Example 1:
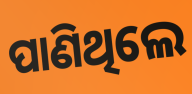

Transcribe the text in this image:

ପାଣିଥିଲେ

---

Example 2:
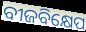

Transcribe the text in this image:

ବୀଜବିକ୍ଷେପ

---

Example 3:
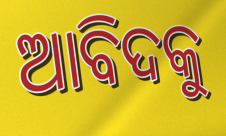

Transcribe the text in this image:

ଆବିଦକୁ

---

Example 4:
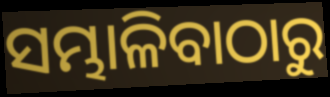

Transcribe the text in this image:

ସମ୍ଭାଳିବାଠାରୁ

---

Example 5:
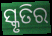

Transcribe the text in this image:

ସ୍କୃତିର